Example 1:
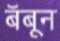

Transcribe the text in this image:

बॅबून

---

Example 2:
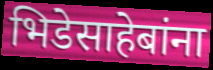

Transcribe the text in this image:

भिडेसाहेबांना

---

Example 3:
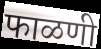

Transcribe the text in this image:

फाळणी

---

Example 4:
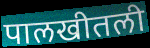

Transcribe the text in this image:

पालखीतली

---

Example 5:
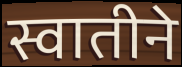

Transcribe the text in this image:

स्वातीने